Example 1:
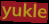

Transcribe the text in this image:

yukle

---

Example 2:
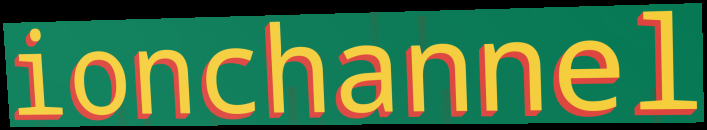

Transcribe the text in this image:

ionchannel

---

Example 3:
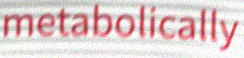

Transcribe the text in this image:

metabolically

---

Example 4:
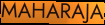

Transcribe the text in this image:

MAHARAJA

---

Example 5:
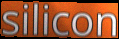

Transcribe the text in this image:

silicon